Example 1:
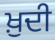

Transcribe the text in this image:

ਖ਼ੁਦੀ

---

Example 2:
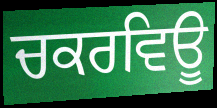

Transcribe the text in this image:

ਚਕਰਵਿਊ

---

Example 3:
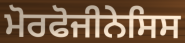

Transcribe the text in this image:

ਮੋਰਫੋਜੀਨੇਸਿਸ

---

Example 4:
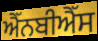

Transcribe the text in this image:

ਐੱਨਬੀਐੱਸ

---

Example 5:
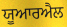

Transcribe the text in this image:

ਯੂਆਰਐਲ